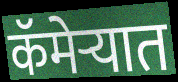
कॅमेऱ्यात